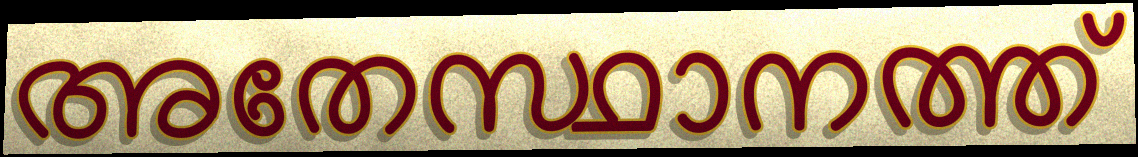
അതേസ്ഥാനത്ത്